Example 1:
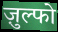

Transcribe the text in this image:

ज़ुल्फो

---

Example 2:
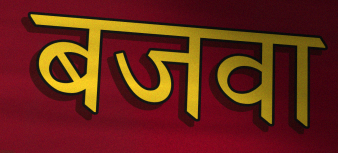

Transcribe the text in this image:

बजवा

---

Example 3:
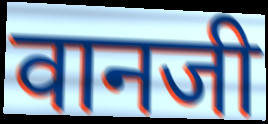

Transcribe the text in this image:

वानजी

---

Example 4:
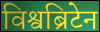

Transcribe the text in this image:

विश्वब्रिटेन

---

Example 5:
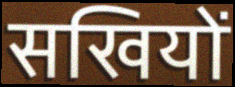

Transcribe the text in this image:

सखियों